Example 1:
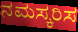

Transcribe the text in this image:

ನಮಸ್ಕರಿಸ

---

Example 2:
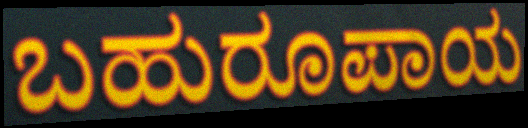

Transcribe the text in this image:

ಬಹುರೂಪಾಯ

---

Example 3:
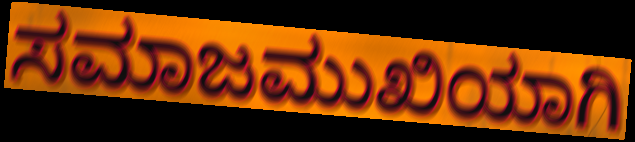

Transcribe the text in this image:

ಸಮಾಜಮುಖಿಯಾಗಿ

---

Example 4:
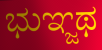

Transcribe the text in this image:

ಭುಞ್ಜಥ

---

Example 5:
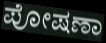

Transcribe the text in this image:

ಪೋಷಣಾ